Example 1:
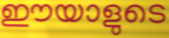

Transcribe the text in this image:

ഈയാളുടെ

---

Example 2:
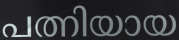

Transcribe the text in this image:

പത്നിയായ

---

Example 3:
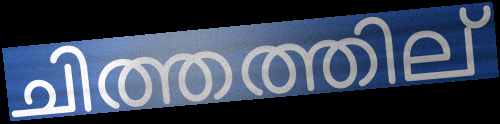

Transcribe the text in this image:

ചിത്തത്തില്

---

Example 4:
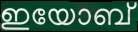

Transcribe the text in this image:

ഇയോബ്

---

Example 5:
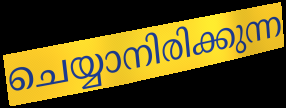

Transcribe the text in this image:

ചെയ്യാനിരിക്കുന്ന